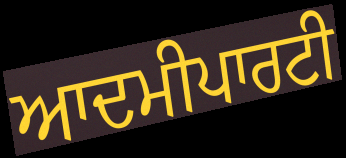
ਆਦਮੀਪਾਰਟੀ